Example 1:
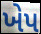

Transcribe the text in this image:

ખેપ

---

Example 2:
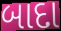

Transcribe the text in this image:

બાદા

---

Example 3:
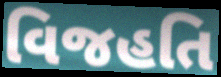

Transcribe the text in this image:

વિજહતિ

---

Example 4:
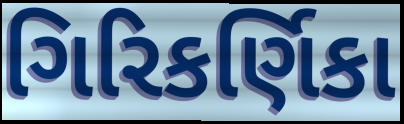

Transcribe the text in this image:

ગિરિકર્ણિકા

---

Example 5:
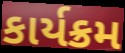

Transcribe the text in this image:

કાર્યક્રમ